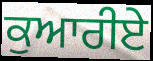
ਕੁਆਰੀਏ